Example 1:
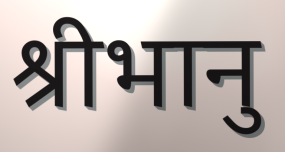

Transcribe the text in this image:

श्रीभानु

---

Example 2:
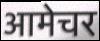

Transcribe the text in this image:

आमेचर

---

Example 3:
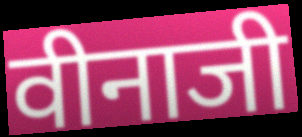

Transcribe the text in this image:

वीनाजी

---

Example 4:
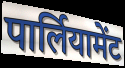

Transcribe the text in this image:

पार्लियामेंट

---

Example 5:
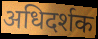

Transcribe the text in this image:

अधिदर्शक